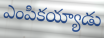
ఎంపికయ్యాడు